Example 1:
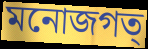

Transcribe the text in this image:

মনোজগত্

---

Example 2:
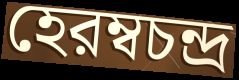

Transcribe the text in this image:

হেরম্বচন্দ্র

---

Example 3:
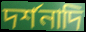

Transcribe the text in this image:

দর্শনাদি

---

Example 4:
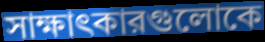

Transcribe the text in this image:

সাক্ষাৎকারগুলোকে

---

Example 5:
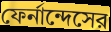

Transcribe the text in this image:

ফের্নান্দেসের